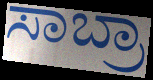
ಸಾಬ್ರಾ